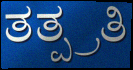
ತತ್ಪ್ರತಿ